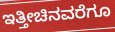
ಇತ್ತೀಚಿನವರೆಗೂ